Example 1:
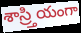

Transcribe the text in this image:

శాస్ర్తియంగా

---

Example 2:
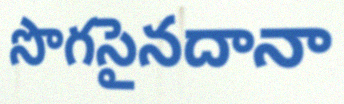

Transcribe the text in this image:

సొగసైనదానా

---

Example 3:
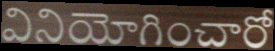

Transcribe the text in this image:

వినియోగించారో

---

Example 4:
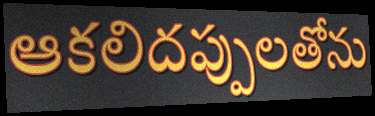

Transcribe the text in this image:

ఆకలిదప్పులతోను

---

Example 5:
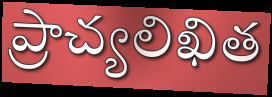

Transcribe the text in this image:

ప్రాచ్యలిఖిత